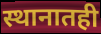
स्थानातही